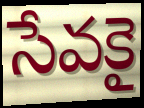
సేవకై